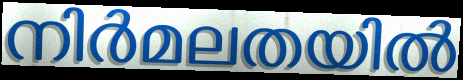
നിർമലതയിൽ